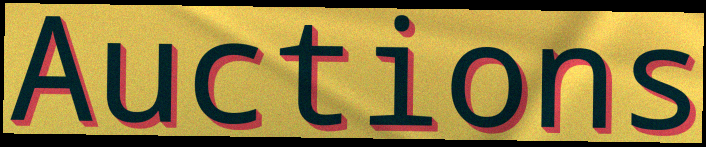
Auctions